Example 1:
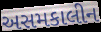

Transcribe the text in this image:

અસમકાલીન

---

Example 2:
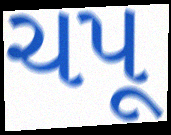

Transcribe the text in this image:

ચપૂ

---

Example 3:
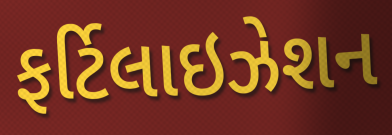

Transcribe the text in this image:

ફર્ટિલાઇઝેશન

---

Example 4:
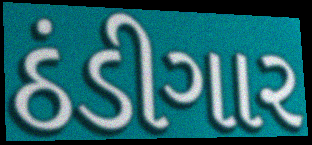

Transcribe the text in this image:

ઠંડીગાર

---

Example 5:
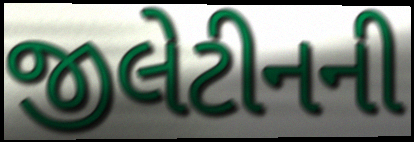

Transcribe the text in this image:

જીલેટીનની